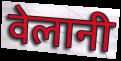
वेलानी